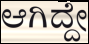
ಆಗಿದ್ದೇ